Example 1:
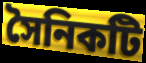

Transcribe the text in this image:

সৈনিকটি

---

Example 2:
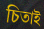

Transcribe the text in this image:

চিতাই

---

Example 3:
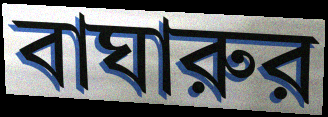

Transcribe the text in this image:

বাঘারুর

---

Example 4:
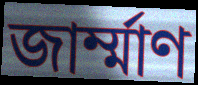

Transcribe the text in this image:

জার্ম্মাণ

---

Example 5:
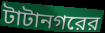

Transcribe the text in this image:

টাটানগরের